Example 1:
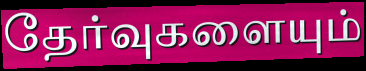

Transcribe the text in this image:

தேர்வுகளையும்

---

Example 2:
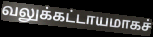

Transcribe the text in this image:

வலுக்கட்டாயமாகச்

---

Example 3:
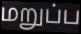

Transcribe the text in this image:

மறுப்ப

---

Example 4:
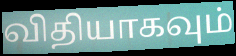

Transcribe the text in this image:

விதியாகவும்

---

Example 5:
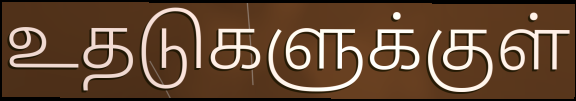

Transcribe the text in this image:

உதடுகளுக்குள்